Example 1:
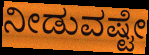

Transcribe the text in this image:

ನೀಡುವಷ್ಟೇ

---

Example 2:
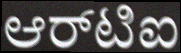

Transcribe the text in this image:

ಆರ್‌ಟಿಐ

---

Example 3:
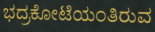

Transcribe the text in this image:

ಭದ್ರಕೋಟೆಯಂತಿರುವ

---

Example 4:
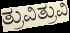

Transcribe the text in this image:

ತ್ರುವಿತ್ರುವಿ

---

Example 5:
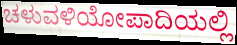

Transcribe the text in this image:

ಚಳುವಳಿಯೋಪಾದಿಯಲ್ಲಿ